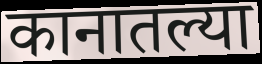
कानातल्या